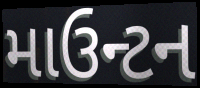
માઉન્ટન